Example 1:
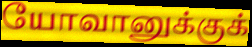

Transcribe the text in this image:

யோவானுக்குக்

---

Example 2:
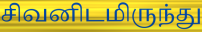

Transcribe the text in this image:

சிவனிடமிருந்து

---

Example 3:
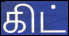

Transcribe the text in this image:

கிட்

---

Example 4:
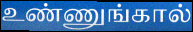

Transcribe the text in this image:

உண்ணுங்கால்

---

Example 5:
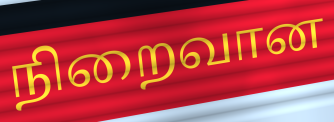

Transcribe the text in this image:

நிறைவான